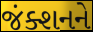
જંક્શનને